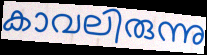
കാവലിരുന്നു